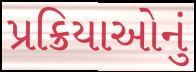
પ્રક્રિયાઓનું